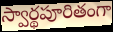
స్వార్థపూరితంగా